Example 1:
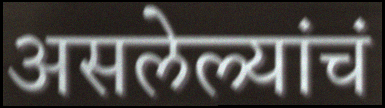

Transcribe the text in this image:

असलेल्यांचं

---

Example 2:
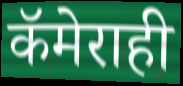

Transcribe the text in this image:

कॅमेराही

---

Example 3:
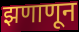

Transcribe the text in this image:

झणाणून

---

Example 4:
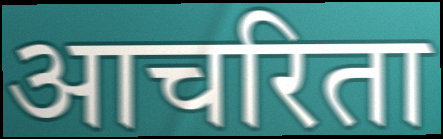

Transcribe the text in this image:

आचरिता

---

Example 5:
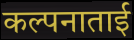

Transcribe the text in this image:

कल्पनाताई